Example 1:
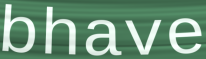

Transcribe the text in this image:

bhave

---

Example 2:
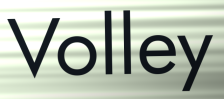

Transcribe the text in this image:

Volley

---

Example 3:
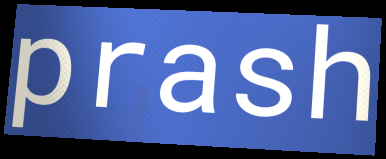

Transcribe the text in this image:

prash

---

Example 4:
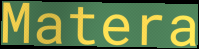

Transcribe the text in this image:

Matera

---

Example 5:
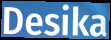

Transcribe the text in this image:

Desika